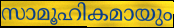
സാമൂഹികമായും